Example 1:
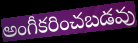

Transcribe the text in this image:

అంగీకరించబడవు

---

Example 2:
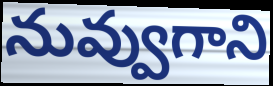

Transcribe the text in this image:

నువ్వుగాని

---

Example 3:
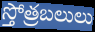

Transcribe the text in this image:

స్తోత్రబలులు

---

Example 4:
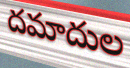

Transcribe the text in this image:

దమాదుల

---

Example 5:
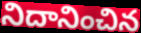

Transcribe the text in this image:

నిదానించిన